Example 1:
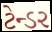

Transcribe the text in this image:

ટેન્ડર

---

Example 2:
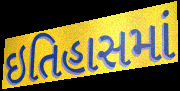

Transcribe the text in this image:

ઇતિહાસમાં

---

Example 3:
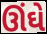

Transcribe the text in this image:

ઊંઘે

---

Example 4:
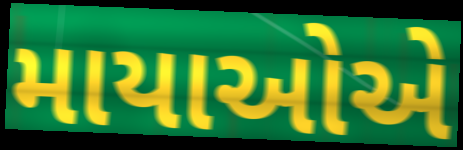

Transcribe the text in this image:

માયાઓએ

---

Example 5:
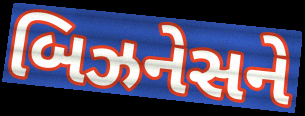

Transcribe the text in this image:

બિઝનેસને